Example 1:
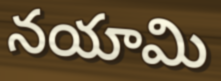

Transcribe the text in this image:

నయామి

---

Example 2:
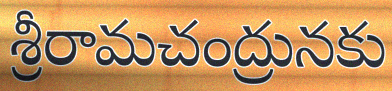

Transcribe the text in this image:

శ్రీరామచంద్రునకు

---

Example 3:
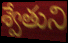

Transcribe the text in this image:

శ్వేతుని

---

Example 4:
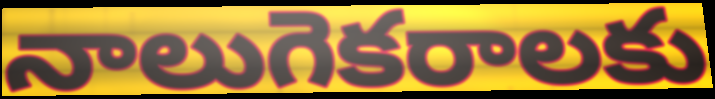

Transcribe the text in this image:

నాలుగెకరాలకు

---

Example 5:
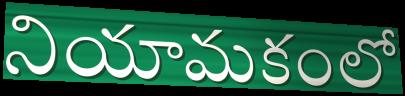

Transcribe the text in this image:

నియామకంలో